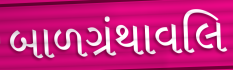
બાળગ્રંથાવલિ